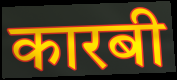
कारबी